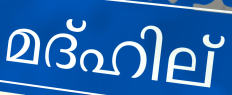
മദ്ഹില്